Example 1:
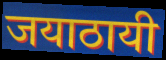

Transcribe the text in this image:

जयाठायी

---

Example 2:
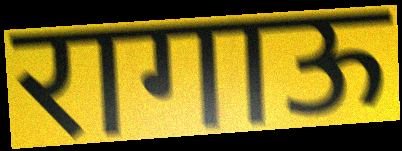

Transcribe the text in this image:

रागाऊ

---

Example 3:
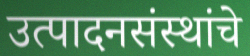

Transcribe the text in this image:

उत्पादनसंस्थांचे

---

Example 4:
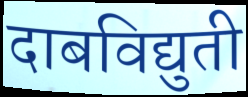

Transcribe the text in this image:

दाबविद्युती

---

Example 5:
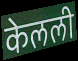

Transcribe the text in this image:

केलली